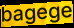
bagege